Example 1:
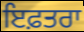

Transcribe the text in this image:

ਇਫ਼ਤਰਾ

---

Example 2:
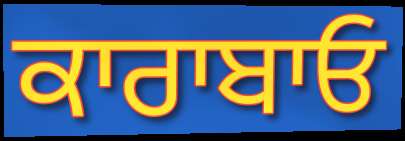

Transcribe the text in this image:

ਕਾਰਾਬਾਓ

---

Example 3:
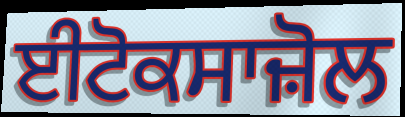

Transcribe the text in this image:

ਈਟੋਕਸਾਜ਼ੋਲ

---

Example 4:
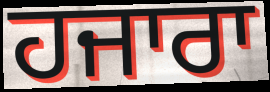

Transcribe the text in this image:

ਹਜਾਰਾ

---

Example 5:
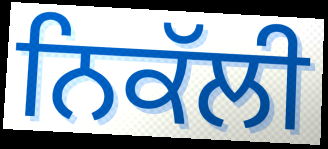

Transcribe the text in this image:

ਨਿਕੱਲੀ